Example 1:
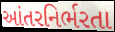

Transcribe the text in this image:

આંતરનિર્ભરતા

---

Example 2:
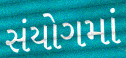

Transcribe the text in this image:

સંયોગમાં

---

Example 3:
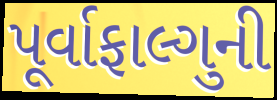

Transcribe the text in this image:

પૂર્વાફાલ્ગુની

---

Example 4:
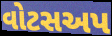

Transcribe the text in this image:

વોટસઅપ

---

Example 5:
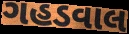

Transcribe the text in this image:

ગહડવાલ